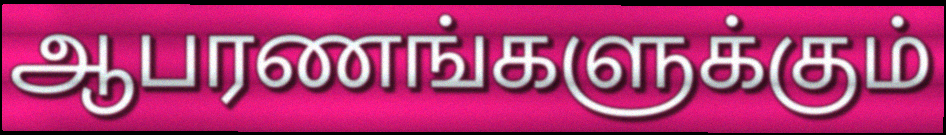
ஆபரணங்களுக்கும்